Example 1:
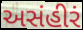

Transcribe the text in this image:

અસંહીરં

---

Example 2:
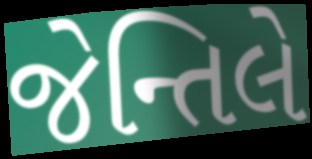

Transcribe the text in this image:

જેન્તિલે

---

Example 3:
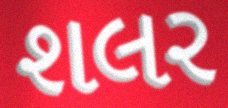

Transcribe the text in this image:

શલર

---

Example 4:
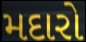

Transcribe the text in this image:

મદારો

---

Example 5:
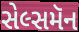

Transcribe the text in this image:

સેલ્સમૅન